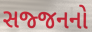
સજ્જનનો